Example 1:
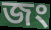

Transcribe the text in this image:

জং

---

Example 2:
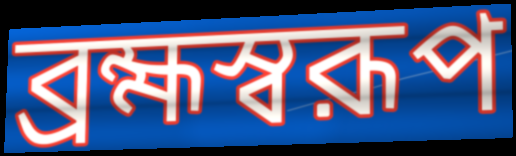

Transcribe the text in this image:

ব্রহ্মস্বরূপ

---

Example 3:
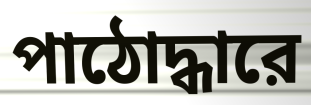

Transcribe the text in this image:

পাঠোদ্ধারে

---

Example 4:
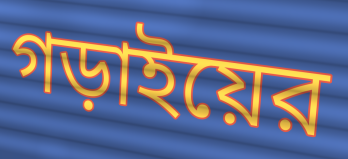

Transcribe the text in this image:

গড়াইয়ের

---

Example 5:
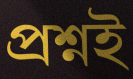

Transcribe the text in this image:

প্রশ্নই